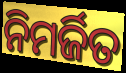
ନିମର୍ଜିତ